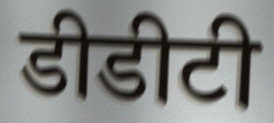
डीडीटी